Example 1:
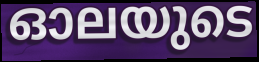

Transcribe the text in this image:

ഓലയുടെ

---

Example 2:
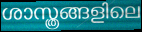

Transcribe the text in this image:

ശാസ്ത്രങ്ങളിലെ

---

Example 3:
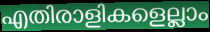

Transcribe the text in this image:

എതിരാളികളെല്ലാം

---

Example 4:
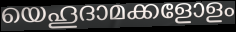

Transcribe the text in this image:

യെഹൂദാമക്കളോളം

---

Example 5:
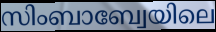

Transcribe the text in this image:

സിംബാബ്വേയിലെ